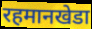
रहमानखेडा